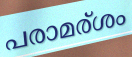
പരാമര്ശം